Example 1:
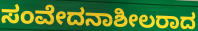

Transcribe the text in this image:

ಸಂವೇದನಾಶೀಲರಾದ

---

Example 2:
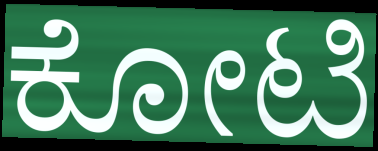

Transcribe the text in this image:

ಕೋಟಿ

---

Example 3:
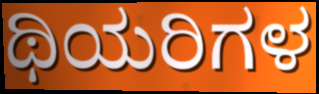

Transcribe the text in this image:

ಥಿಯರಿಗಳ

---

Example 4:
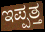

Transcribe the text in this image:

ಇಪ್ಪತ್ತ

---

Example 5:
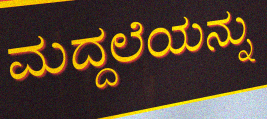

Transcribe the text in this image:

ಮದ್ದಲೆಯನ್ನು